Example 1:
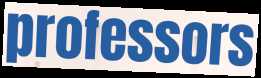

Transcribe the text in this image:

professors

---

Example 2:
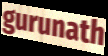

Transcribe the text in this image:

gurunath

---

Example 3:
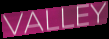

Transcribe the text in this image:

VALLEY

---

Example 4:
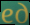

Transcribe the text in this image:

ed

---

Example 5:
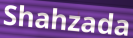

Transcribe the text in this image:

Shahzada